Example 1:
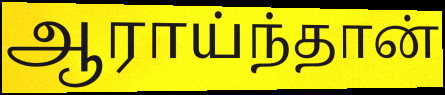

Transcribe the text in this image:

ஆராய்ந்தான்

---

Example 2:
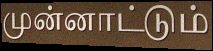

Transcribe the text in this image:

முன்னாட்டும்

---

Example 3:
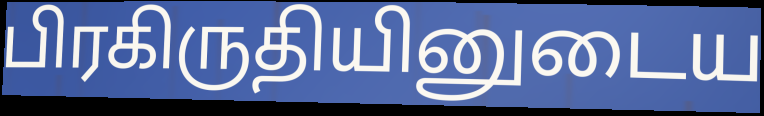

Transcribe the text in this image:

பிரகிருதியினுடைய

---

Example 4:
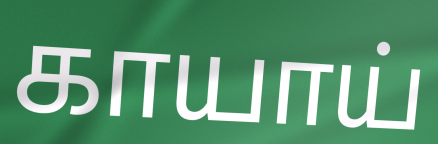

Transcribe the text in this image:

காயாய்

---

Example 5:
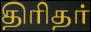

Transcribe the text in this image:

திரிதர்